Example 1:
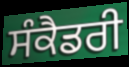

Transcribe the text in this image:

ਸੰਕੈਡਰੀ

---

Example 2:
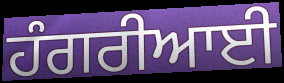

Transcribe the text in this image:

ਹੰਗਰੀਆਈ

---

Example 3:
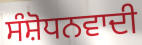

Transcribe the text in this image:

ਸੰਸ਼ੋਧਨਵਾਦੀ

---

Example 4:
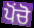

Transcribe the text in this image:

ਪੋਂਚੋ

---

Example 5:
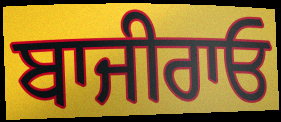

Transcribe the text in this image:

ਬਾਜੀਰਾਓ